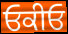
ਓਕੀਓ